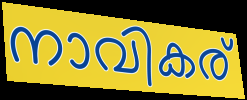
നാവികര്